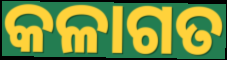
କଳାଗତ